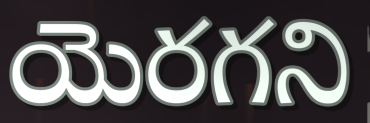
యెరగని